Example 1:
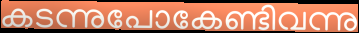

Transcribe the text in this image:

കടന്നുപോകേണ്ടിവന്നു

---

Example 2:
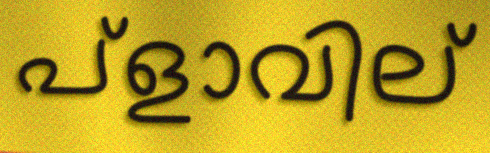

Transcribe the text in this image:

പ്ളാവില്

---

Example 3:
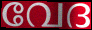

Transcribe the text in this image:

വേദ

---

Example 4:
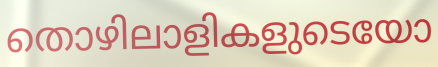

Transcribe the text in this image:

തൊഴിലാളികളുടെയോ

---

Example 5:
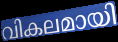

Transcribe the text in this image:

വികലമായി